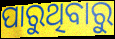
ପାରୁଥିବାରୁ